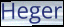
Heger